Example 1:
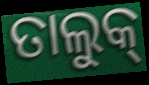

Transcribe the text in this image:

ତାଲୁକ୍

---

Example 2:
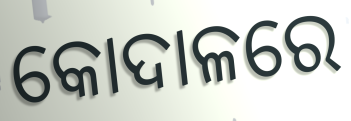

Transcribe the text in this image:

କୋଦାଳରେ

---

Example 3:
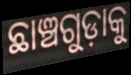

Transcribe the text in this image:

ଛାଞ୍ଚଗୁଡ଼ାକୁ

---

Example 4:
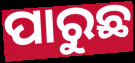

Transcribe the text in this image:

ପାରୁଛ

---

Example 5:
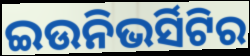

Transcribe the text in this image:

ଇଉନିଭର୍ସିଟିର